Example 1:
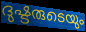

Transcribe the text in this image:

ദുഷ്ടരുടെയും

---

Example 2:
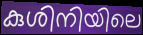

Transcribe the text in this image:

കുശിനിയിലെ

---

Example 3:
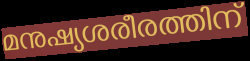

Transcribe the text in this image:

മനുഷ്യശരീരത്തിന്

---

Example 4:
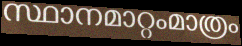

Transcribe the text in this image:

സ്ഥാനമാറ്റംമാത്രം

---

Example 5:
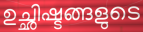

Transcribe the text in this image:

ഉച്ഛിഷ്ടങ്ങളുടെ